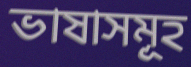
ভাষাসমূহ